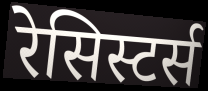
रेसिस्टर्स